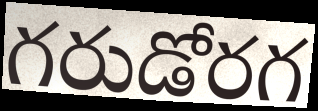
గరుడోరగ